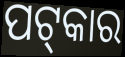
ପଟ୍‌କାର